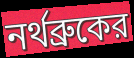
নর্থব্রুকের